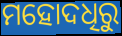
ମହୋଦଧିରୁ